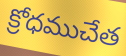
క్రోధముచేత